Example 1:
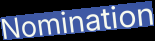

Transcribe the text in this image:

Nomination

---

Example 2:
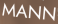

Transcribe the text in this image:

MANN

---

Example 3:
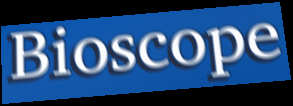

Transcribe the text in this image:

Bioscope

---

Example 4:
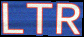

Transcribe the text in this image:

LTR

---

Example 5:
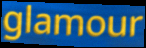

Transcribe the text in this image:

glamour